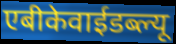
एबीकेवाईडब्ल्यू